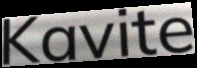
Kavite